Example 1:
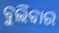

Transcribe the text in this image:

ବୁଲିବାର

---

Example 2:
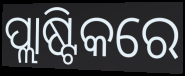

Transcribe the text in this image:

ପ୍ଲାଷ୍ଟିକରେ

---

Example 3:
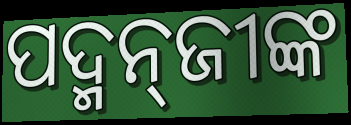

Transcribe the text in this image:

ପଦ୍ମନ୍‌ଜୀଙ୍କ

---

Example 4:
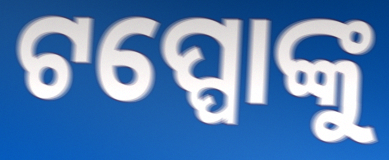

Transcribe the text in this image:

ଟପ୍ପୋଙ୍କୁ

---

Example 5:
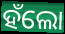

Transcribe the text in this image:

ହଁଲୋ